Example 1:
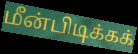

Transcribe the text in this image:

மீன்பிடிக்கக்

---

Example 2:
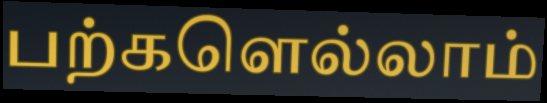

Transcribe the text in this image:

பற்களெல்லாம்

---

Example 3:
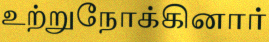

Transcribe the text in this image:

உற்றுநோக்கினார்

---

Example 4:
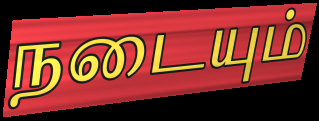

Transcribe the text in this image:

நடையும்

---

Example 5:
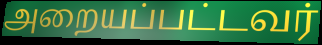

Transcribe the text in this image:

அறையப்பட்டவர்